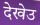
देखेउ